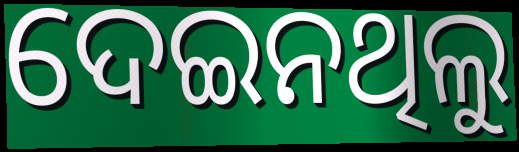
ଦେଇନଥିଲୁ